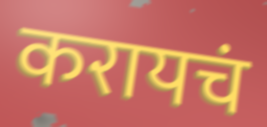
करायचं